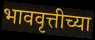
भाववृत्तीच्या